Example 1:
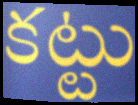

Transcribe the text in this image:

కట్టు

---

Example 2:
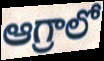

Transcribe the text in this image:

ఆగ్రాలో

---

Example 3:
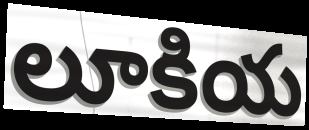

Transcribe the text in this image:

లూకియ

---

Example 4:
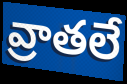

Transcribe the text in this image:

వ్రాతలే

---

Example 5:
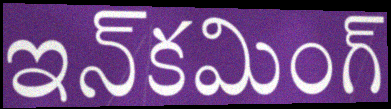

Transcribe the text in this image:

ఇన్‌కమింగ్